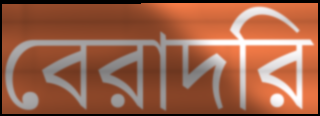
বেরাদরি